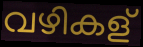
വഴികള്